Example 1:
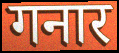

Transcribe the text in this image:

गनार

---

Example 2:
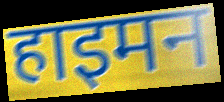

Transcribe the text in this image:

हाइमन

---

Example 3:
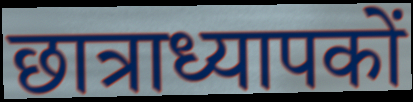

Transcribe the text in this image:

छात्राध्यापकों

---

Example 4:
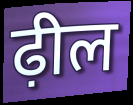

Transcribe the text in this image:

ढ़ील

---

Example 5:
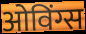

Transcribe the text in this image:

ओविंग्स